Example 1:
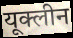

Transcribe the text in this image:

यूक्लीन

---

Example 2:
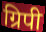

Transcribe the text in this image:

ग्रिपी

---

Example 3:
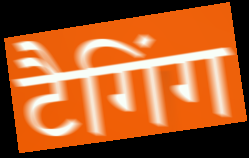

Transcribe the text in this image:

टैगिंग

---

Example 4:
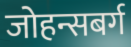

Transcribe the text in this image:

जोहन्सबर्ग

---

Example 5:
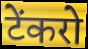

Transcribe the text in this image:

टेंकरो